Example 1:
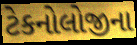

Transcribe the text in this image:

ટેકનોલોજીના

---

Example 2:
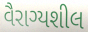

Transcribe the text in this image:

વૈરાગ્યશીલ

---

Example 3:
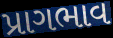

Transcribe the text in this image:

પ્રાગભાવ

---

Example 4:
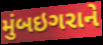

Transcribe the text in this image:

મુંબઇગરાને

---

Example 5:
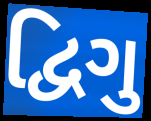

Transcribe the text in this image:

દ્વિગુ